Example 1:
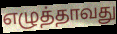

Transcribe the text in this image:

எழுத்தாவது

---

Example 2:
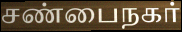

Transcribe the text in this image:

சண்பைநகர்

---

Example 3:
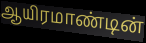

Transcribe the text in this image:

ஆயிரமாண்டின்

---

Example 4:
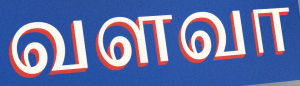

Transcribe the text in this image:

வளவா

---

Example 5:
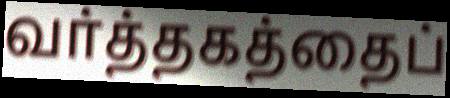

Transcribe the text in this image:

வர்த்தகத்தைப்